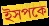
ইসপকে